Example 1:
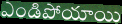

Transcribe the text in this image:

ఎండిపోయాయి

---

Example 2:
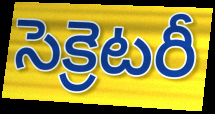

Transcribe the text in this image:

సెక్రెటరీ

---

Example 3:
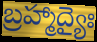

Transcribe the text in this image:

బ్రహ్మాద్యైః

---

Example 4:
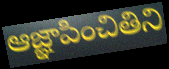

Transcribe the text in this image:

ఆజ్ఞాపించితిని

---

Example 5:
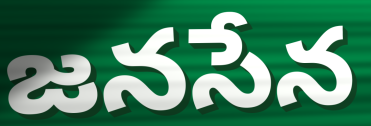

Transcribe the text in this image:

జనసేన